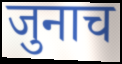
जुनाच